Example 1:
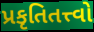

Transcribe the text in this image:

પ્રકૃતિતત્ત્વો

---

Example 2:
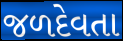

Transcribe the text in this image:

જળદેવતા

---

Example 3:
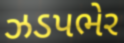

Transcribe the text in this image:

ઝડપભેર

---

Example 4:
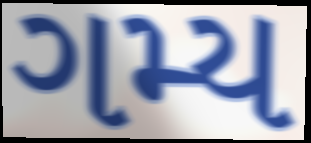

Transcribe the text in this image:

ગમ્ય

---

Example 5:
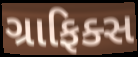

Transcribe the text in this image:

ગ્રાફિક્સ